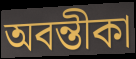
অবন্তীকা